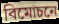
বিমোচনে